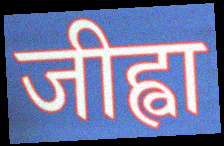
जीह्वा